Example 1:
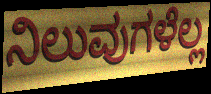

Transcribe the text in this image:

ನಿಲುವುಗಳೆಲ್ಲ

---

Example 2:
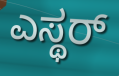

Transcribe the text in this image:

ಎಸ್ಥರ್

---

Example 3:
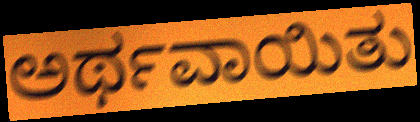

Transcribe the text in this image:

ಅರ್ಥವಾಯಿತು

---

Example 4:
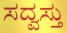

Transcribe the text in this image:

ಸದ್ವಸ್ತು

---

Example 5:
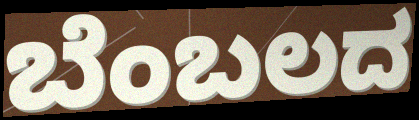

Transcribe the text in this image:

ಬೆಂಬಲದ